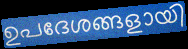
ഉപദേശങ്ങളായി